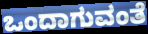
ಒಂದಾಗುವಂತೆ